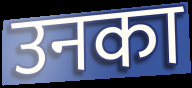
उनका